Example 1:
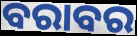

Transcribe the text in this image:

ବରାବର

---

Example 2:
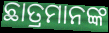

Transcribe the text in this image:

ଛାତ୍ରମାନଙ୍କ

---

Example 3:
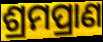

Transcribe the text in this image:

ଶ୍ରମପ୍ରାଣ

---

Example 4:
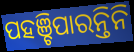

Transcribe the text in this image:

ପହଞ୍ଚିପାରନ୍ତିନି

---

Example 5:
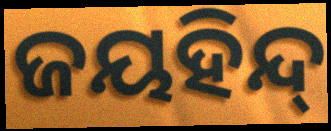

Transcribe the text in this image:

ଜୟହିନ୍ଦ୍